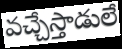
వచ్చేస్తాడులే